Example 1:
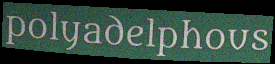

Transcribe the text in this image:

polyadelphous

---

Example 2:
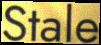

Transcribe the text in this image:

Stale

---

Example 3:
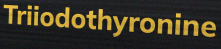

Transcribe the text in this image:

Triiodothyronine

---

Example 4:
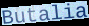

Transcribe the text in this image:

Butalia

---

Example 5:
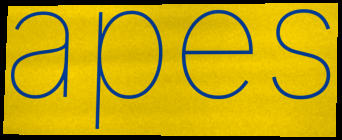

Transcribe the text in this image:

apes